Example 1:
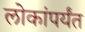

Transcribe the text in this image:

लोकांपर्यंत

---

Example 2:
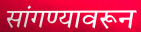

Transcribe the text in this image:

सांगण्यावरून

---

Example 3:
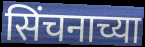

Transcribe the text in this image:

सिंचनाच्या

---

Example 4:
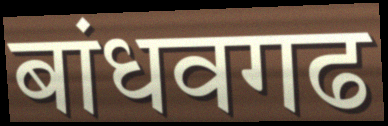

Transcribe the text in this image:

बांधवगढ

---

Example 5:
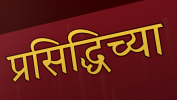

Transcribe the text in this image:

प्रसिद्धिच्या